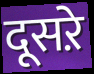
दूसऱे